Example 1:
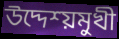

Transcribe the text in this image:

উদ্দেশ্য়মুখী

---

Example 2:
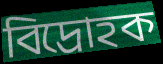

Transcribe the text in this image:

বিদ্ৰোহক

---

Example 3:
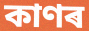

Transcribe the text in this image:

কাণৰ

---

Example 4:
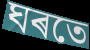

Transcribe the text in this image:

ঘৰতে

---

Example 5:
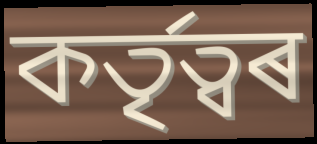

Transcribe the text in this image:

কৰ্তৃত্বৰ